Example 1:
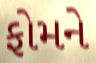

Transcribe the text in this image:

ફોમને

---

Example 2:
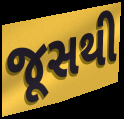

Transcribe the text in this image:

જૂસથી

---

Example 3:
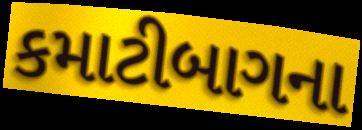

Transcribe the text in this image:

કમાટીબાગના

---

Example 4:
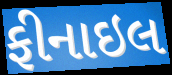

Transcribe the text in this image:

ફીનાઇલ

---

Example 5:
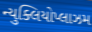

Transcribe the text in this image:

ન્યુક્લિયોપ્લાઝમ